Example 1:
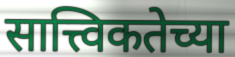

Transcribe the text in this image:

सात्त्विकतेच्या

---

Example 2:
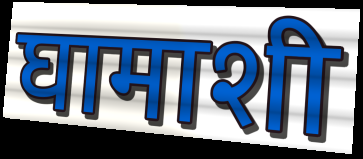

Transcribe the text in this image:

घामाशी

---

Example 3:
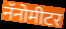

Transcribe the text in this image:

नॅनोमीटर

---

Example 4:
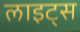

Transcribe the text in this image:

लाइट्स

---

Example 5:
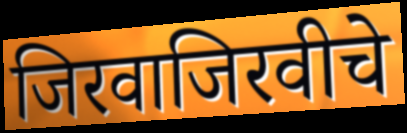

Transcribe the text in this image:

जिरवाजिरवीचे